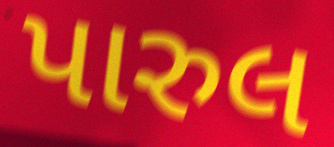
પારુલ